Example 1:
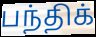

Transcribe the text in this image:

பந்திக்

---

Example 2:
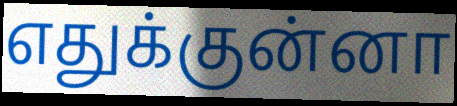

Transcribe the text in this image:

எதுக்குன்னா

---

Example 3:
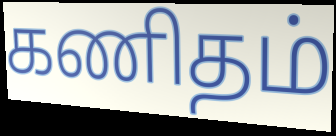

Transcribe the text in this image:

கணிதம்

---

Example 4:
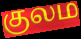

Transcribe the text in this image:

குலம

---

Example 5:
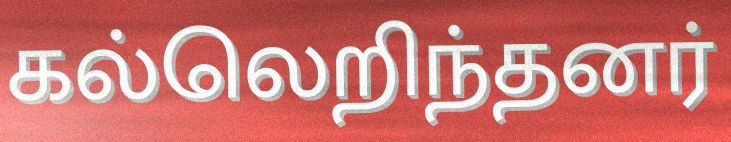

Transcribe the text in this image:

கல்லெறிந்தனர்